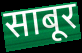
साबूर